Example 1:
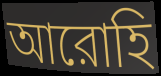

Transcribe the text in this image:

আরোহি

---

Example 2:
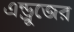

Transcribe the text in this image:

এন্ড্রুজের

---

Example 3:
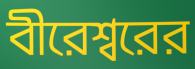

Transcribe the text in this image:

বীরেশ্বরের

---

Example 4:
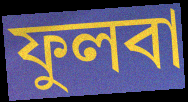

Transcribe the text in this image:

ফুলবা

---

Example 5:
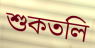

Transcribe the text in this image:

শুকতলি